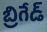
బ్రిగేడ్